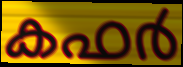
കഫർ